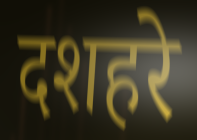
दशहरे